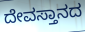
ದೇವಸ್ತಾನದ